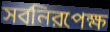
সর্বনিরপেক্ষ